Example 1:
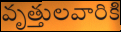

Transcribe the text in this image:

వృత్తులవారికి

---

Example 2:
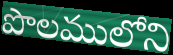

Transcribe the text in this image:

పొలములోని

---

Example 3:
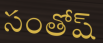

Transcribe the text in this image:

సంతోష్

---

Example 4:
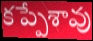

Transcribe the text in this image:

కప్పేశావు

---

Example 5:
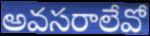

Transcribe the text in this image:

అవసరాలేవో